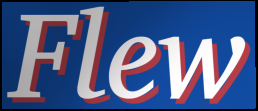
Flew